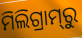
ମିଲିଗ୍ରାମ୍‌ରୁ